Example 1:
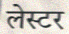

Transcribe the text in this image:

लेस्टर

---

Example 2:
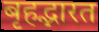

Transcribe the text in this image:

बृहद्भारत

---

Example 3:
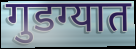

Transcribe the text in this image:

गुडग्यात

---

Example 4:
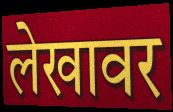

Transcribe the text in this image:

लेखावर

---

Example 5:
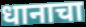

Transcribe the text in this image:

धानाचा